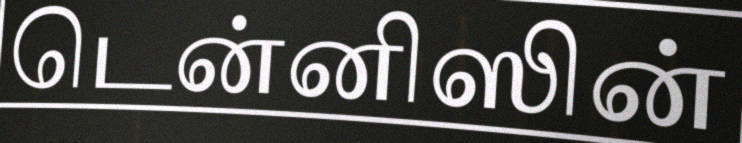
டென்னிஸின்